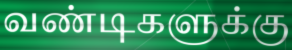
வண்டிகளுக்கு